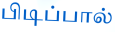
பிடிப்பால்